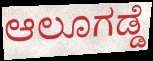
ಆಲೂಗಡ್ಡೆ